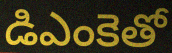
డిఎంకెతో